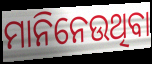
ମାନିନେଉଥିବା